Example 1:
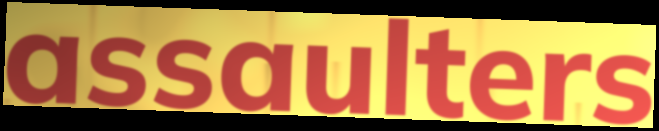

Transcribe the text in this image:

assaulters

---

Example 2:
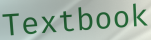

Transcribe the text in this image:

Textbook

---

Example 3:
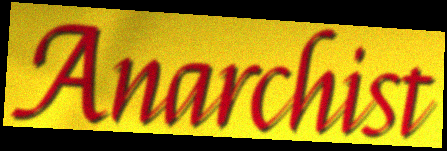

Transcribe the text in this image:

Anarchist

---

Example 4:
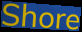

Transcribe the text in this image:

Shore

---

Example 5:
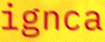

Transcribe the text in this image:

ignca